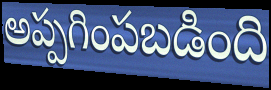
అప్పగింపబడింది